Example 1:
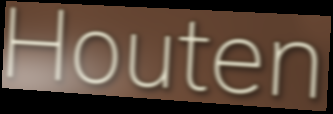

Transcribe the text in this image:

Houten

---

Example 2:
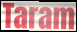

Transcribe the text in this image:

Taram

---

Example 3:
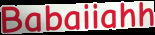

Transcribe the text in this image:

Babaiiahh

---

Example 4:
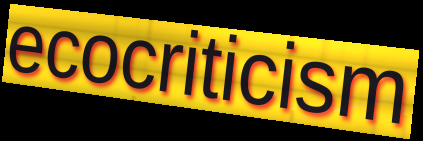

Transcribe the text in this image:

ecocriticism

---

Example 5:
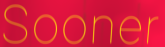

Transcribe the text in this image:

Sooner